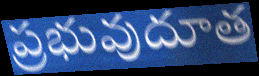
ప్రభువుదూత